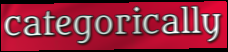
categorically